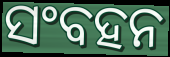
ସଂବହନ